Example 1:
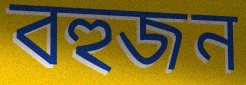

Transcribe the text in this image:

বহুজন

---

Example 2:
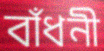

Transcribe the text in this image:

বাঁধনী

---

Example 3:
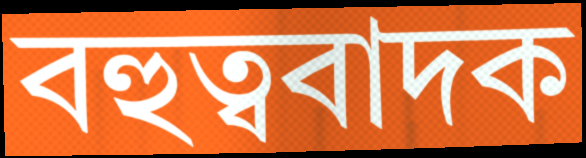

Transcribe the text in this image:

বহুত্ববাদক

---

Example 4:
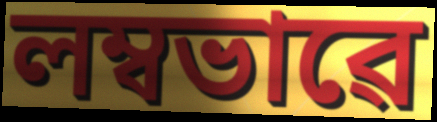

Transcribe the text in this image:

লম্বভাৱে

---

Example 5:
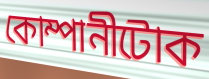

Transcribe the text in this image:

কোম্পানীটোক